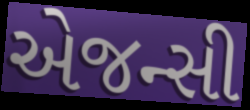
એજન્સી